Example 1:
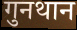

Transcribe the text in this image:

गुनथान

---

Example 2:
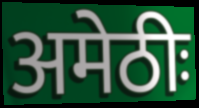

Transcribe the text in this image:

अमेठीः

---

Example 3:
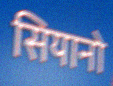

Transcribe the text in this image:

सियानो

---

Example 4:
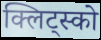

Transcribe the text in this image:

क्लिट्स्को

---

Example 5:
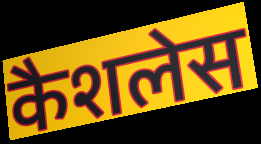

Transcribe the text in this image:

कैशलेस